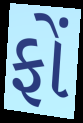
ફોં